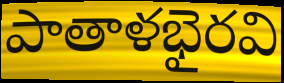
పాతాళభైరవి